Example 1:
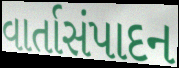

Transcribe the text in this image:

વાર્તાસંપાદન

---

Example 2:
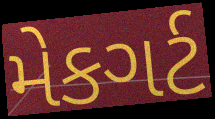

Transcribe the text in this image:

મેકગર્ટ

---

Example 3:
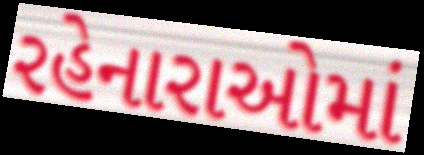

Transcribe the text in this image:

રહેનારાઓમાં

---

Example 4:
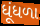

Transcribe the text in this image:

ધૂંધળા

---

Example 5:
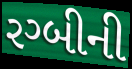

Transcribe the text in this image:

રગ્બીની